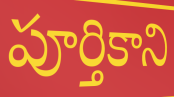
పూర్తికాని